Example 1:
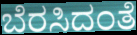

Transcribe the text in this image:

ಬೆರಸಿದಂತೆ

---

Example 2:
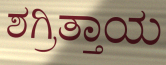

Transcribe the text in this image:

ಶಗ್ರಿತ್ತಾಯ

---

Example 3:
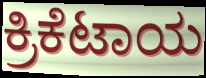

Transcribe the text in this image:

ಕ್ರಿಕೆಟಾಯ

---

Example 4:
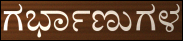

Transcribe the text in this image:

ಗರ್ಭಾಣುಗಳ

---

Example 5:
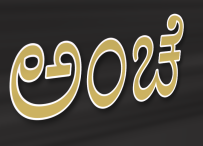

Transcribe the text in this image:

ಅಂಚೆ